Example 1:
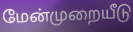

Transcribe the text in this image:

மேன்முறையீடு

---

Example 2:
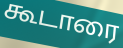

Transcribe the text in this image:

கூடாரை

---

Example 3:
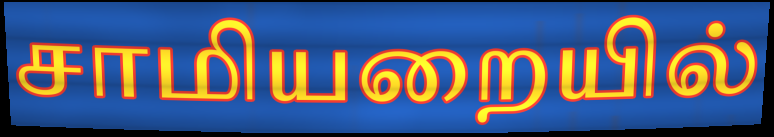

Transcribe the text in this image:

சாமியறையில்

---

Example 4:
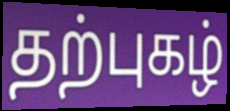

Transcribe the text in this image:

தற்புகழ்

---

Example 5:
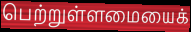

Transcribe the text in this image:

பெற்றுள்ளமையைக்